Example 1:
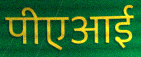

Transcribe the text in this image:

पीएआई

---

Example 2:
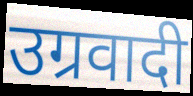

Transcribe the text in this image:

उग्रवादी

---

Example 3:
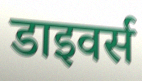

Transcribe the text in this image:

डाइवर्स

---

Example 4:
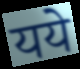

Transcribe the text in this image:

यये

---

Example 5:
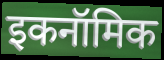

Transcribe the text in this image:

इकनॉमिक